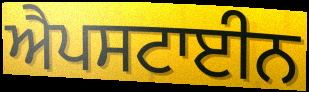
ਐਪਸਟਾਈਨ